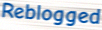
Reblogged